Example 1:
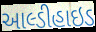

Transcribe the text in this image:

આલ્ડીહાઇડ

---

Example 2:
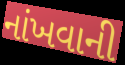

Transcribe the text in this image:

નાંખવાની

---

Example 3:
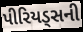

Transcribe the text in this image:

પીરિયડ્સની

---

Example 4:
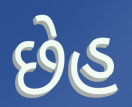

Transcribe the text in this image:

છેહ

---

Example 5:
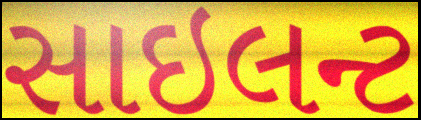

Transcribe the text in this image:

સાઇલન્ટ